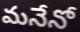
మనేనో